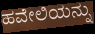
ಹವೇಲಿಯನ್ನು